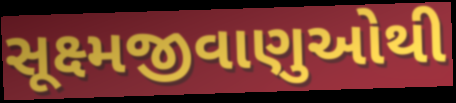
સૂક્ષ્મજીવાણુઓથી